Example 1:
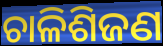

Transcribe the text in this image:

ଚାଳିଶିଜଣ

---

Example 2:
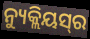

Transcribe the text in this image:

ନ୍ୟୁକ୍ଲିୟସ୍‌ର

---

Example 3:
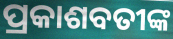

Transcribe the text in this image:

ପ୍ରକାଶବତୀଙ୍କ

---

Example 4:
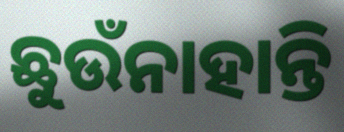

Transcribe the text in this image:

ଛୁଉଁନାହାନ୍ତି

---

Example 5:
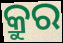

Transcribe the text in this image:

କ୍ରୁର